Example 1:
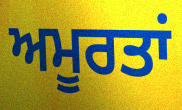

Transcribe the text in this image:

ਅਮੂਰਤਾਂ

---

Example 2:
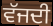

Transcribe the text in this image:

ਵੱਜਦੀ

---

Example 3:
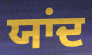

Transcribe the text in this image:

ਯਾਂਦ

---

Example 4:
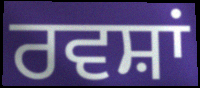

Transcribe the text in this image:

ਰਵਸ਼ਾਂ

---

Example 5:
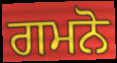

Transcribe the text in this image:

ਗਮਨੋ